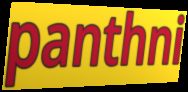
panthni